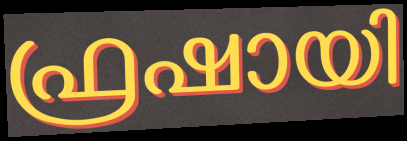
ഫ്രഷായി